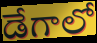
డేగాలో